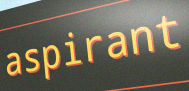
aspirant